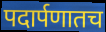
पदार्पणातच